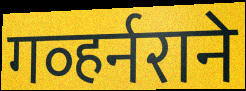
गव्हर्नराने